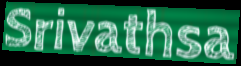
Srivathsa